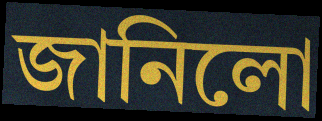
জানিলো